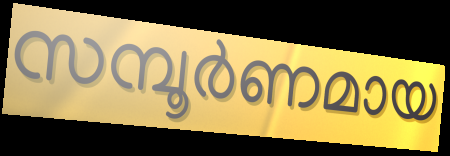
സമ്പൂർണമായ